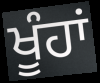
ਖੂੰਹਾਂ